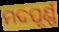
ମଦପୂର୍ଣ୍ଣ